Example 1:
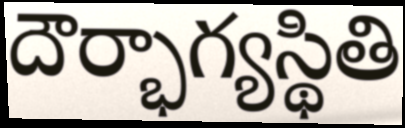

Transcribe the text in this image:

దౌర్భాగ్యస్థితి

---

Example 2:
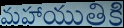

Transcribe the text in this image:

మహాయుతికి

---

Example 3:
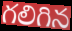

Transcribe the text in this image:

గలిగిన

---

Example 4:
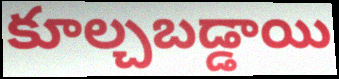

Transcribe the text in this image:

కూల్చబడ్డాయి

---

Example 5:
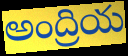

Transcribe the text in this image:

అంద్రియ